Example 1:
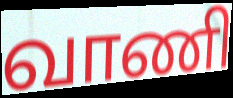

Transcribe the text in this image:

வாணி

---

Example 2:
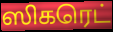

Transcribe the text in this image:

ஸிகரெட்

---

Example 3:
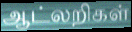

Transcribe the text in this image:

ஆட்லறிகள்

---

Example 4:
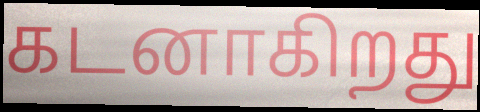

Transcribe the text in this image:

கடனாகிறது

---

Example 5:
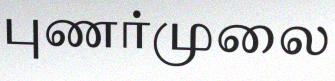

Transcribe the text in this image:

புணர்முலை